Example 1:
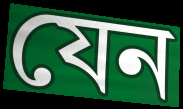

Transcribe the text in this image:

যেন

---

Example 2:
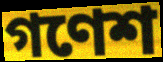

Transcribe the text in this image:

গণেশ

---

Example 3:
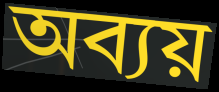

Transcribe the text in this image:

অব্যয়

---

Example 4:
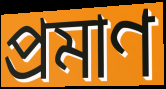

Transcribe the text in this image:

প্ৰমাণ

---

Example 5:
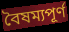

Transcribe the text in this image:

বৈষম্যপূৰ্ণ